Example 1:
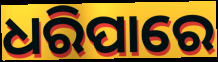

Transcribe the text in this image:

ଧରିପାରେ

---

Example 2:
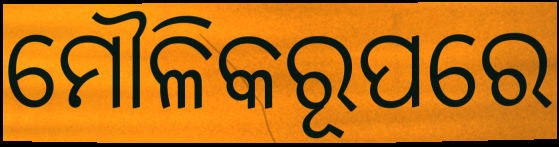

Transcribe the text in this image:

ମୌଳିକରୂପରେ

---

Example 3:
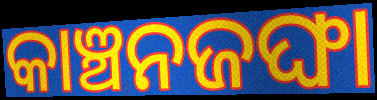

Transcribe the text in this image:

କାଞ୍ଚନଜଙ୍ଘା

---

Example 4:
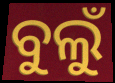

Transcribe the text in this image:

ବୁଲୁଁ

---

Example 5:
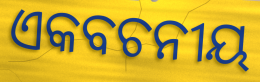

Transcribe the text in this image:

ଏକବଚନୀୟ